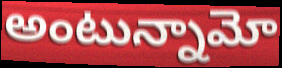
అంటున్నామో